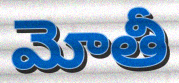
మోతీ